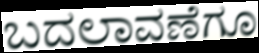
ಬದಲಾವಣೆಗೂ